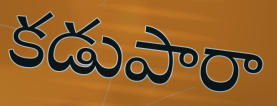
కడుపారా